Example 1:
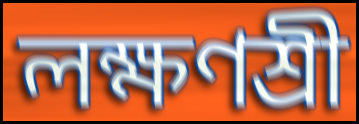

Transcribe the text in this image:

লক্ষণশ্রী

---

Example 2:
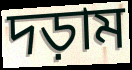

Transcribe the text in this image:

দড়াম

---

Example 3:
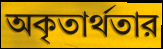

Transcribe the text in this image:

অকৃতার্থতার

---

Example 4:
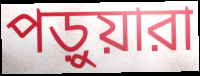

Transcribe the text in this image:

পড়ুয়ারা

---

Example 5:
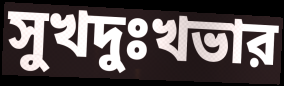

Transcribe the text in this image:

সুখদুঃখভার